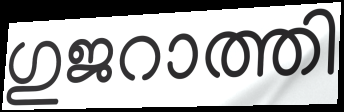
ഗുജറാത്തി